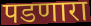
पडणारा